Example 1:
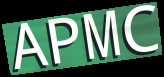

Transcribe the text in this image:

APMC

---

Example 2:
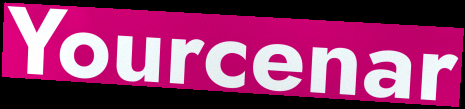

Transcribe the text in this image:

Yourcenar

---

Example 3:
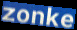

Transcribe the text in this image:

zonke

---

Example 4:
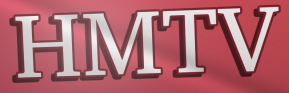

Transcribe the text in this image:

HMTV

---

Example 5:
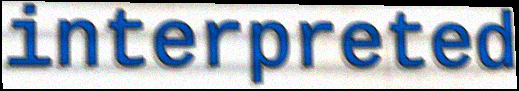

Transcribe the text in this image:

interpreted